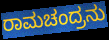
ರಾಮಚಂದ್ರನು